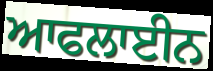
ਆਫਲਾਈਨ